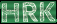
HRK